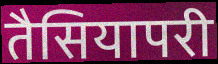
तैसियापरी